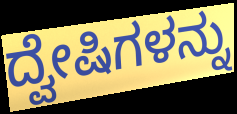
ದ್ವೇಷಿಗಳನ್ನು